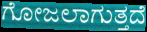
ಗೋಜಲಾಗುತ್ತದೆ